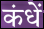
कंधें